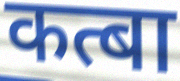
कत्बा